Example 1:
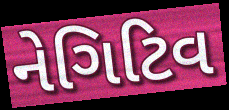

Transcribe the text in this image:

નેગિટિવ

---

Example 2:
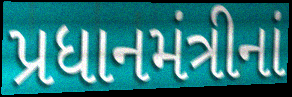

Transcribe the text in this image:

પ્રધાનમંત્રીનાં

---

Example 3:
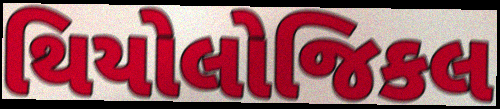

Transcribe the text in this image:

થિયોલોજિકલ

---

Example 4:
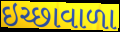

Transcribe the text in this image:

ઇચ્છાવાળા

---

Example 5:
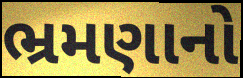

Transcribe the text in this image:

ભ્રમણાનો